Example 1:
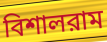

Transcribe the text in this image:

বিশালরাম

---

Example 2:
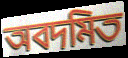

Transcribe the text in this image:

অবদমিত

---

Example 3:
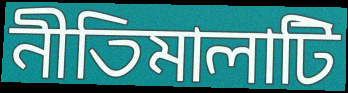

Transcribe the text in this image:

নীতিমালাটি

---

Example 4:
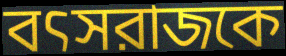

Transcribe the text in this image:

বৎসরাজকে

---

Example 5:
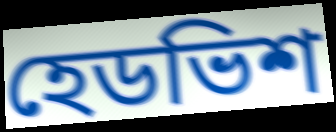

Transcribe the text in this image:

হেডভিশ